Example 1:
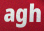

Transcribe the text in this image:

agh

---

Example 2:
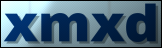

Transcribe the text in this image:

xmxd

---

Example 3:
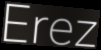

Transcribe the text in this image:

Erez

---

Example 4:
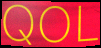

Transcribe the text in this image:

QOL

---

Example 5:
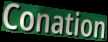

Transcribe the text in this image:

Conation